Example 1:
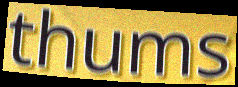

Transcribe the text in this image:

thums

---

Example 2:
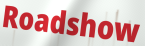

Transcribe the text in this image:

Roadshow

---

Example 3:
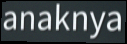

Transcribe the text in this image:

anaknya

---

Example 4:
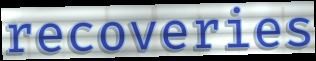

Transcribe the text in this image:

recoveries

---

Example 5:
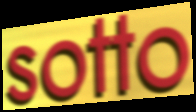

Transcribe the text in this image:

sotto